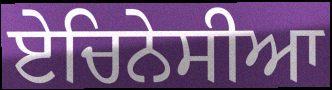
ਏਚਿਨੇਸੀਆ